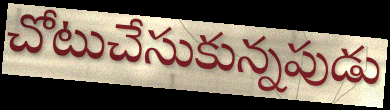
చోటుచేసుకున్నపుడు